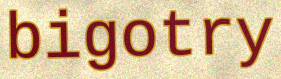
bigotry